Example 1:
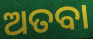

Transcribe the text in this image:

ଅତବା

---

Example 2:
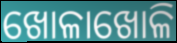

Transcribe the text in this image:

ଖୋଳାଖୋଳି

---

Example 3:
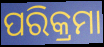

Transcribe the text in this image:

ପରିକ୍ରମା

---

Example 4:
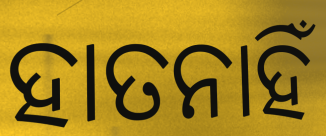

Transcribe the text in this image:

ହାତନାହିଁ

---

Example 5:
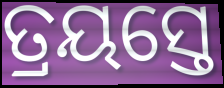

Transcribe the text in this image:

ତ୍ରୟସ୍ତେ